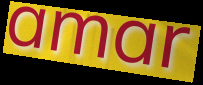
amar